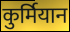
कुर्मियान